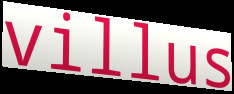
villus